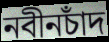
নবীনচাঁদ